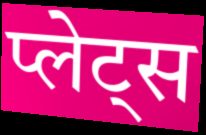
प्‍लेट्स